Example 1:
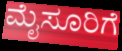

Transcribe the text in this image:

ಮೈಸೂರಿಗೆ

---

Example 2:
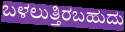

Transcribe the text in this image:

ಬಳಲುತ್ತಿರಬಹುದು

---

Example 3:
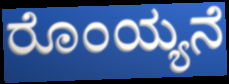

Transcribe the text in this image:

ರೊಂಯ್ಯನೆ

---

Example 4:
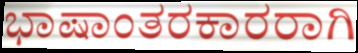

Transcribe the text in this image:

ಭಾಷಾಂತರಕಾರರಾಗಿ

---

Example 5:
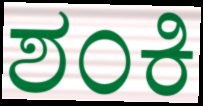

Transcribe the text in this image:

ಶಂಕಿ